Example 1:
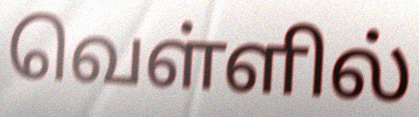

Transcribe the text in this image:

வெள்ளில்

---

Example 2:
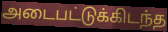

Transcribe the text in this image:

அடைபட்டுக்கிடந்த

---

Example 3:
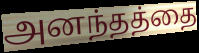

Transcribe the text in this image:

அனந்தத்தை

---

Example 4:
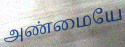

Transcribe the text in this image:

அண்மையே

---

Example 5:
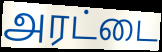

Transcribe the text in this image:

அரட்டை